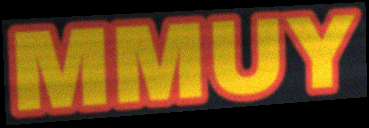
MMUY